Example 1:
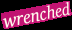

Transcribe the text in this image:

wrenched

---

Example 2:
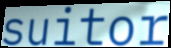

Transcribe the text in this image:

suitor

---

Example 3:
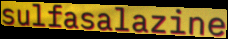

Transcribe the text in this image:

sulfasalazine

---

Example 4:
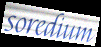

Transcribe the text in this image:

soredium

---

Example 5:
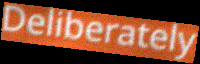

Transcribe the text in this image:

Deliberately